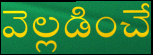
వెల్లడించే